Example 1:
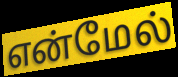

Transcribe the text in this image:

என்மேல்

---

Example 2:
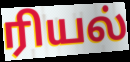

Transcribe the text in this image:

ரியல்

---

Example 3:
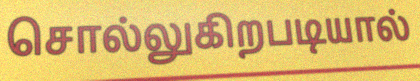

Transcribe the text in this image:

சொல்லுகிறபடியால்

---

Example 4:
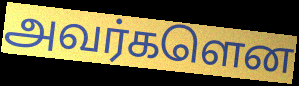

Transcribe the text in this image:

அவர்களென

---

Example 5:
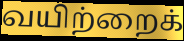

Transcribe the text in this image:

வயிற்றைக்